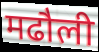
मढौली